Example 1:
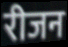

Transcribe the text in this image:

रीजन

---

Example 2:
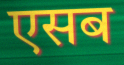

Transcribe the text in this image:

एसब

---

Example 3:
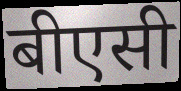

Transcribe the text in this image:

बीएसी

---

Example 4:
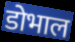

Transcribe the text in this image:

डोभाल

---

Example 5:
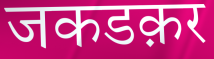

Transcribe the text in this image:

जकडक़र